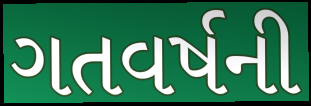
ગતવર્ષની